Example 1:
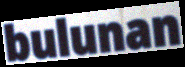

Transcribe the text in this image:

bulunan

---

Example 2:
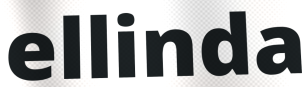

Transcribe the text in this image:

ellinda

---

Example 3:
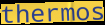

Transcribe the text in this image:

thermos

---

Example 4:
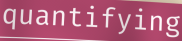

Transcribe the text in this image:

quantifying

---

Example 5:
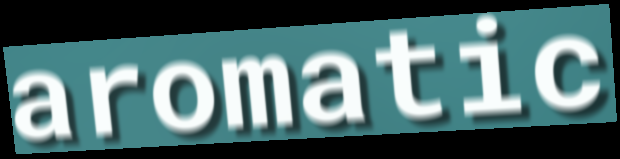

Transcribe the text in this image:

aromatic